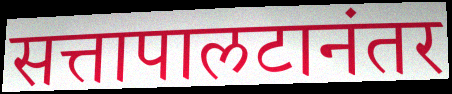
सत्तापालटानंतर